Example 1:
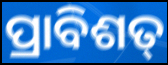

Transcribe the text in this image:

ପ୍ରାବିଶତ୍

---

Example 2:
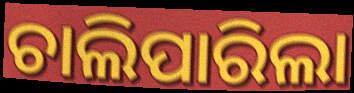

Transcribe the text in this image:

ଚାଲିପାରିଲା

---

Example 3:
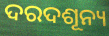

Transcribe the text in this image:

ଦରଦଶୂନ୍ୟ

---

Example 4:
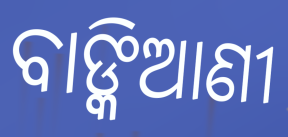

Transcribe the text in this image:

ବାଙ୍କିଆଣୀ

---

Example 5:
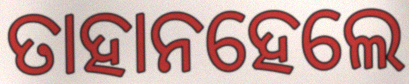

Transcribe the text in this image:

ତାହାନହେଲେ